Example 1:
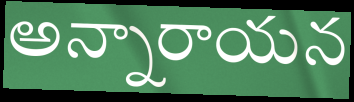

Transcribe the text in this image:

అన్నారాయన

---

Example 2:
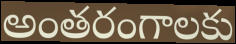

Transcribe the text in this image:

అంతరంగాలకు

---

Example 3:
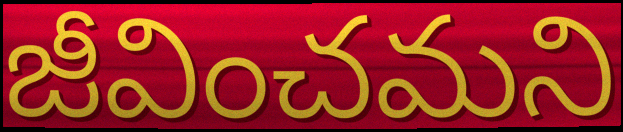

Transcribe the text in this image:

జీవించమని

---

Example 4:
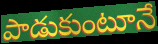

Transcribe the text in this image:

పాడుకుంటూనే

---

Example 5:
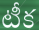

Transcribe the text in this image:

టీక